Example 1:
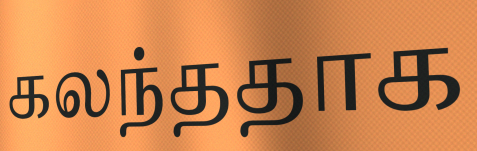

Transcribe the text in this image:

கலந்ததாக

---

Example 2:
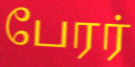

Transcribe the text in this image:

பேரர்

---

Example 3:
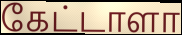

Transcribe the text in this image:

கேட்டாளா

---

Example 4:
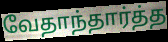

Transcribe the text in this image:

வேதாந்தார்த்த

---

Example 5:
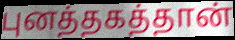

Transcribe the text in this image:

புனத்தகத்தான்